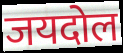
जयदोल